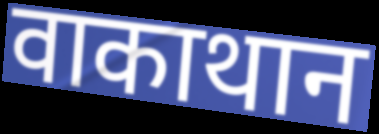
वाकाथान